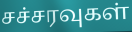
சச்சரவுகள்